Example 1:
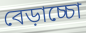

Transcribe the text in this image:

বেড়াচ্চো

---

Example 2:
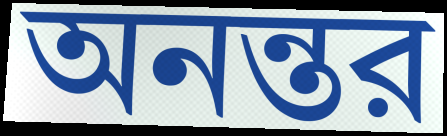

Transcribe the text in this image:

অনন্তর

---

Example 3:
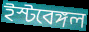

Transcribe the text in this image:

ইস্টবেঙ্গল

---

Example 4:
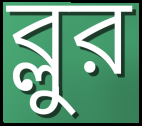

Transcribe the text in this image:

ব্লুর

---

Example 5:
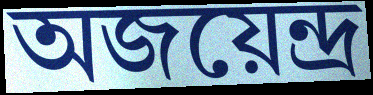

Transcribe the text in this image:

অজয়েন্দ্র